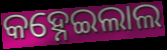
କହ୍ନେଇଲାଲ